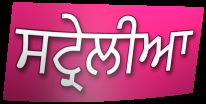
ਸਟ੍ਰੇਲੀਆ